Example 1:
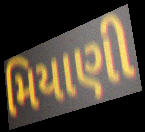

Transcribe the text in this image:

મિયાણી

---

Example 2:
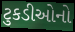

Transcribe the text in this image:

ટુકડીઓનો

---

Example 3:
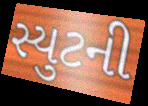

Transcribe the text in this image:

સ્યુટની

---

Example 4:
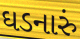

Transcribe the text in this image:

ઘડનારું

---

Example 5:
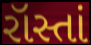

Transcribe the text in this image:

રૉસ્તાં